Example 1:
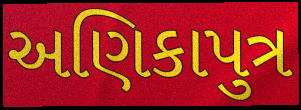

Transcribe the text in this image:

અણિકાપુત્ર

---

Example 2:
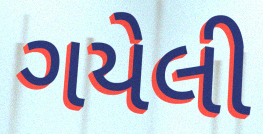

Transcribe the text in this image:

ગયેલી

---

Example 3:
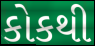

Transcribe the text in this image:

કોકથી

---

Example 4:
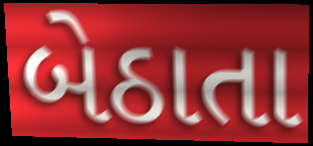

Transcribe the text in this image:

બેઠાતા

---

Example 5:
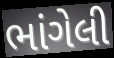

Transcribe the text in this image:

ભાંગેલી